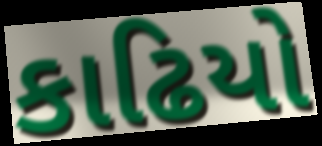
કાઢિયો